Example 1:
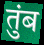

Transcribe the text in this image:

तुंब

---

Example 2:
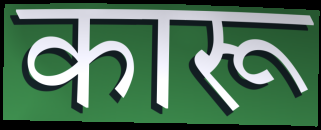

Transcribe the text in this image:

कारू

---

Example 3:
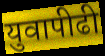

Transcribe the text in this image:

युवापीढी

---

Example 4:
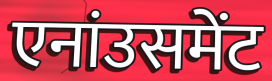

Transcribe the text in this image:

एनांउसमेंट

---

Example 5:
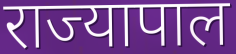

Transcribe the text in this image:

राज्यापाल